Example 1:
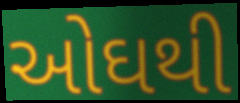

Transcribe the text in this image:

ઓઘથી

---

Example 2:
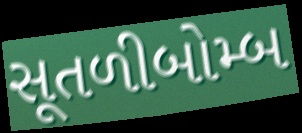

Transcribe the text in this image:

સૂતળીબોમ્બ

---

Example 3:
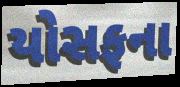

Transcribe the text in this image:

યોસફના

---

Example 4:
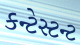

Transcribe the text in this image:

કન્ટેસ્ટન્ટ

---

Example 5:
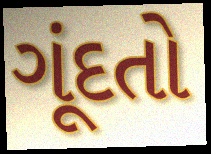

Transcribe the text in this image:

ગૂંદતો